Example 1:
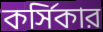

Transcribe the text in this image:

কর্সিকার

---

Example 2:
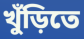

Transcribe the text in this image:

খুঁড়িতে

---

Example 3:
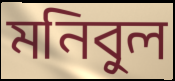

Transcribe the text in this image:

মনিবুল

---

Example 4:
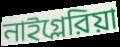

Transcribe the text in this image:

নাইগ্লেরিয়া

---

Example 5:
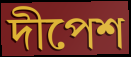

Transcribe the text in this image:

দীপেশ